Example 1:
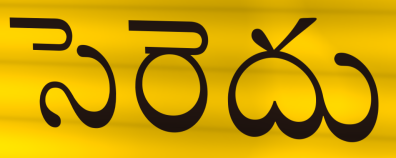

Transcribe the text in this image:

సెరెదు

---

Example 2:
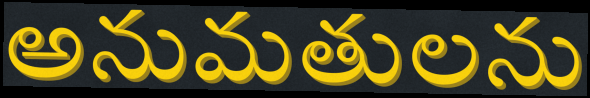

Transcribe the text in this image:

అనుమతులను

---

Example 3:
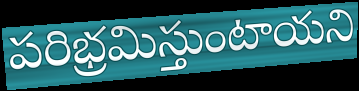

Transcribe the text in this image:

పరిభ్రమిస్తుంటాయని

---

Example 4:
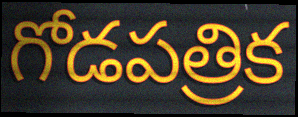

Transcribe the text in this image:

గోడపత్రిక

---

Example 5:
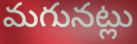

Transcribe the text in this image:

మగునట్లు